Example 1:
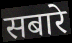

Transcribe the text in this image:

सबारे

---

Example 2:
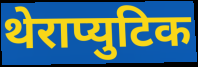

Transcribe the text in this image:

थेराप्युटिक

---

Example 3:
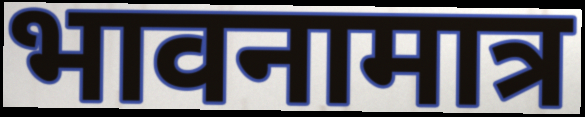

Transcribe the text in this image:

भावनामात्र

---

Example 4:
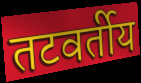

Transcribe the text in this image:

तटवर्तीय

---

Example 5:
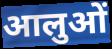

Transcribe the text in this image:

आलुओं